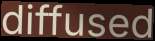
diffused